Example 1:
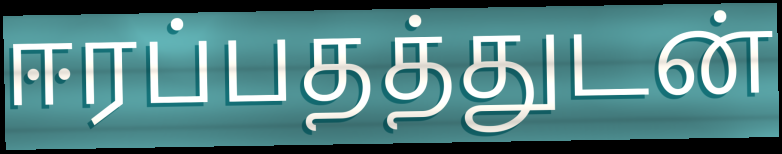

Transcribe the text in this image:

ஈரப்பதத்துடன்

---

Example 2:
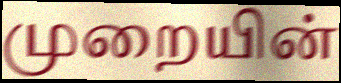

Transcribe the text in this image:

முறையின்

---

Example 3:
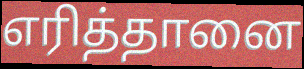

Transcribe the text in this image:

எரித்தானை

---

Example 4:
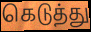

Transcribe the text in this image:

கெடுத்து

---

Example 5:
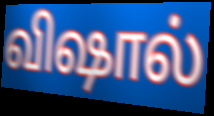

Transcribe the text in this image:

விஷால்